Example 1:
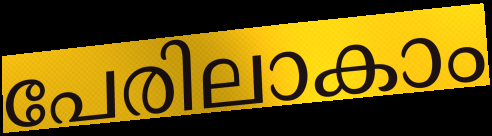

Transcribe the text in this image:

പേരിലാകാം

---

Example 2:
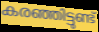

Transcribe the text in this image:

കരഞ്ഞിട്ടുണ്ട്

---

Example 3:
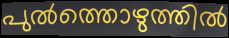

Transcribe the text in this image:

പുൽത്തൊഴുത്തിൽ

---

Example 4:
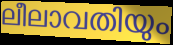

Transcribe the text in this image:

ലീലാവതിയും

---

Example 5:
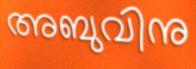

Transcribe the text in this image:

അബുവിനു